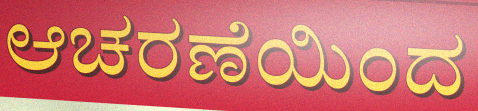
ಆಚರಣೆಯಿಂದ